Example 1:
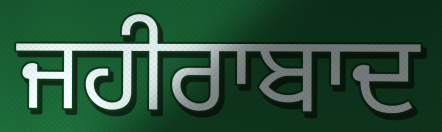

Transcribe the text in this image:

ਜਹੀਰਾਬਾਦ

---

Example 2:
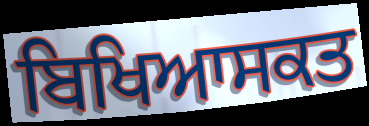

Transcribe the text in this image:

ਬਿਖਿਆਸਕਤ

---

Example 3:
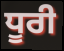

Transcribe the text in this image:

ਧੂਰੀ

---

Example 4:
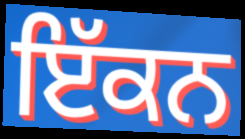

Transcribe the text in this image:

ਇੱਕਨ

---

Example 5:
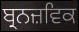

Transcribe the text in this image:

ਬ੍ਰਨਜ਼ਵਿਕ